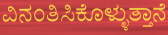
ವಿನಂತಿಸಿಕೊಳ್ಳುತ್ತಾನೆ